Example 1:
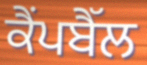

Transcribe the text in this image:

ਕੈਂਪਬੈੱਲ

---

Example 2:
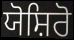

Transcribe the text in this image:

ਯੋਸ਼ਿਰੋ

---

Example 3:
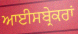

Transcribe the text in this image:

ਆਈਸਬ੍ਰੇਕਰਾਂ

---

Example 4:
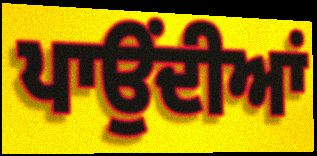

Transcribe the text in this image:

ਪਾਉਂਦੀਆਂ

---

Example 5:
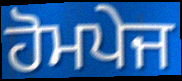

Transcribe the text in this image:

ਹੋਮਪੇਜ